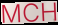
MCH